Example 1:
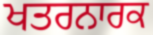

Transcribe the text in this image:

ਖਤਰਨਾਰਕ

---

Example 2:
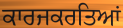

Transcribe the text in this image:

ਕਾਰਜਕਰਤਿਆਂ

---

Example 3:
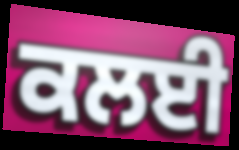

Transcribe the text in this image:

ਕਲਈ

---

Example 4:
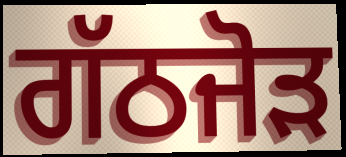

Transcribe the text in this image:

ਗੱਠਜੋੜ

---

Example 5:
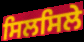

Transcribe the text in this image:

ਸਿਲਸਿਲੇ